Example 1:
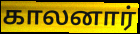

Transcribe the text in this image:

காலனார்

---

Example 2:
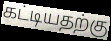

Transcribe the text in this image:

கட்டியதற்கு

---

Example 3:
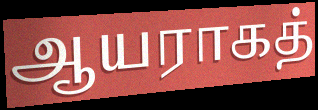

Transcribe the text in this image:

ஆயராகத்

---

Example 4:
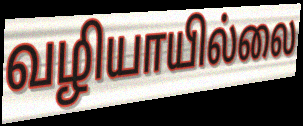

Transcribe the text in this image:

வழியாயில்லை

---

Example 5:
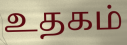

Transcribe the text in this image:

உதகம்